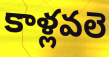
కాళ్లవలె